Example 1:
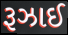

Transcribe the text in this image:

રૂઝાઈ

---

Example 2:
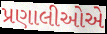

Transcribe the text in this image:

પ્રણાલીઓએ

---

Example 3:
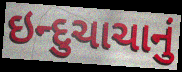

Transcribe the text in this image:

ઇન્દુચાચાનું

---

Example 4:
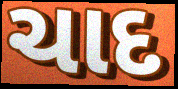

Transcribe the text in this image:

ચાદ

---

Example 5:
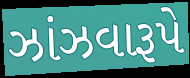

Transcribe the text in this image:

ઝાંઝવારૂપે